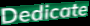
Dedicate